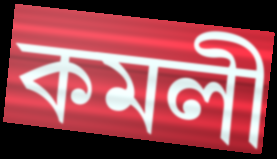
কমলী